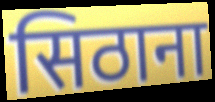
सिठाना